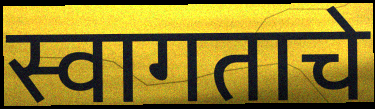
स्वागताचे